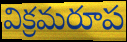
విక్రమరూప